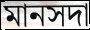
মানসদা